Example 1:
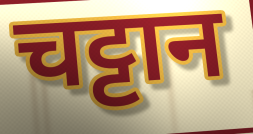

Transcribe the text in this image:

चट्टान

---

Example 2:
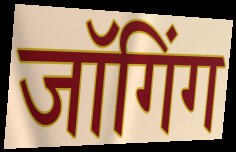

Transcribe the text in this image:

जॉगिंग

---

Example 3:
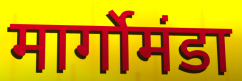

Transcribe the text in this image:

मार्गोमंडा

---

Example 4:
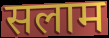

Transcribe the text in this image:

सलाम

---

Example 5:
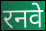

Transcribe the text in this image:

रनवे